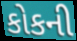
કોકની